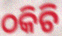
ଠକିଚି